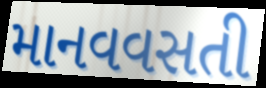
માનવવસતી